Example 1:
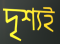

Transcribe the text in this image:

দৃশ্যই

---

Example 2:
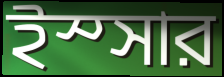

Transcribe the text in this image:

ইস্সার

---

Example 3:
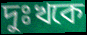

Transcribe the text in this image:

দুঃখকে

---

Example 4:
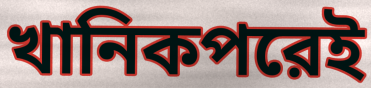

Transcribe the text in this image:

খানিকপরেই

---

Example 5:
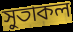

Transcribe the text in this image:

সুতাকল